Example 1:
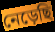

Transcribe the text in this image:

নেড়েছি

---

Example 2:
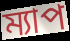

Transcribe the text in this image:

ম্যাপ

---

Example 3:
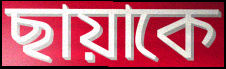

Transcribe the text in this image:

ছায়াকে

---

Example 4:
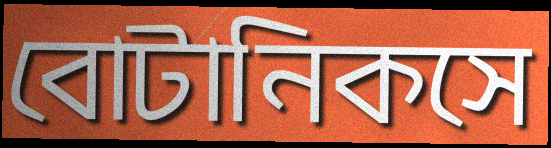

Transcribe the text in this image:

বোটানিকসে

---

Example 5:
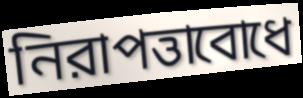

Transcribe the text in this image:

নিরাপত্তাবোধে